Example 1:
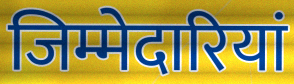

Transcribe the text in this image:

जिम्मेदारियां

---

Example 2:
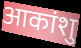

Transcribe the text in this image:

आकांशु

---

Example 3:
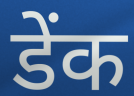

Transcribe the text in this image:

डेंक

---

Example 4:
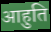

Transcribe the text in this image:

आहुति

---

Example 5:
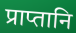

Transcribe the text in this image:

प्राप्तानि